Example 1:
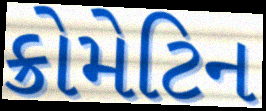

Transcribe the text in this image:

ક્રોમેટિન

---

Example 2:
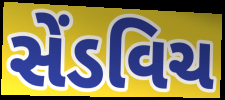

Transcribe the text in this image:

સેંડવિચ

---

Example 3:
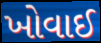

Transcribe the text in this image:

ખોવાઈ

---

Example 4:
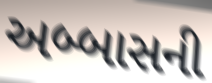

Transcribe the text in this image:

અબ્બાસની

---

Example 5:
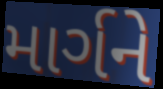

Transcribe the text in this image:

માર્ગને